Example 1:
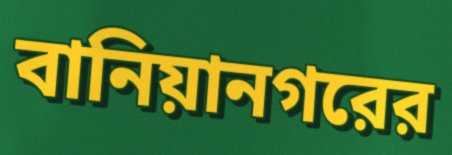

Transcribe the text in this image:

বানিয়ানগরের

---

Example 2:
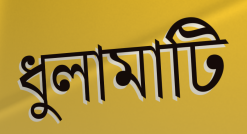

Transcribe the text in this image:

ধুলামাটি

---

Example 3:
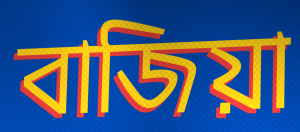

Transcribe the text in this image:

বাজিয়া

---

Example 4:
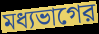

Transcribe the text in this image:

মধ্যভাগের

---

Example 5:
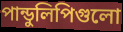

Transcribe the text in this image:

পান্ডুলিপিগুলো